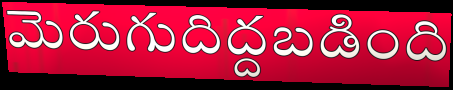
మెరుగుదిద్దబడింది